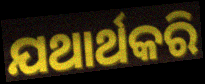
ଯଥାର୍ଥକରି